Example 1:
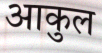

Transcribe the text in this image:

आकुल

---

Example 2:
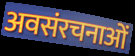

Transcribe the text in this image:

अवसंरचनाओं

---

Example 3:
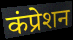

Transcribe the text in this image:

कंप्रेशन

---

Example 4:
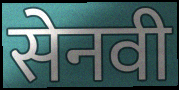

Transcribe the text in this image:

सेनवी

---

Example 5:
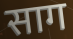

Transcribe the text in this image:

साग